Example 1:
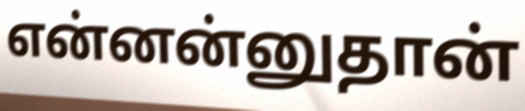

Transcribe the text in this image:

என்னன்னுதான்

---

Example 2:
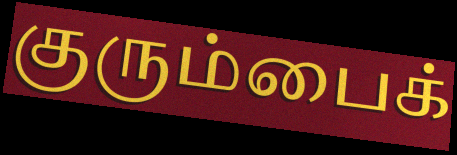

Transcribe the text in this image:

குரும்பைக்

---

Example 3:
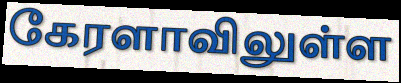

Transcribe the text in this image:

கேரளாவிலுள்ள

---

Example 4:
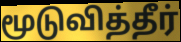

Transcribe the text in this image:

மூடுவித்தீர்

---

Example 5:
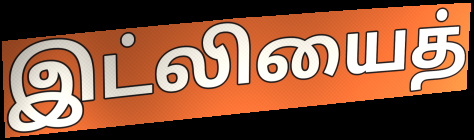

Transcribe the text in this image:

இட்லியைத்